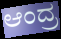
ಆಂದ್ರ